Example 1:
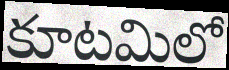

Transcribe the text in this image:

కూటమిలో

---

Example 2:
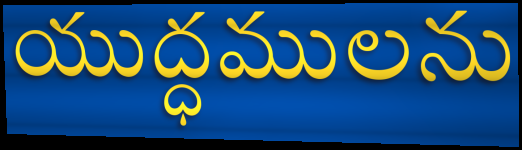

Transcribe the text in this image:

యుద్ధములను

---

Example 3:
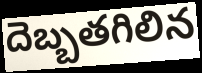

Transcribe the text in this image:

దెబ్బతగిలిన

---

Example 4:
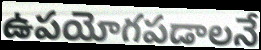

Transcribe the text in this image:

ఉపయోగపడాలనే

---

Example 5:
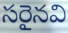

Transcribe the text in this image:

సరైనవి